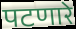
पटणारे